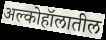
अल्कोहॉलातील